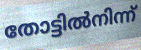
തോട്ടിൽനിന്ന്